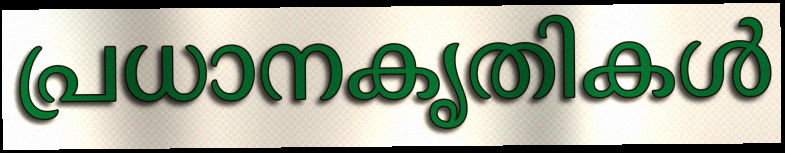
പ്രധാനകൃതികൾ